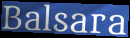
Balsara